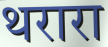
थरारा